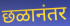
छळानंतर